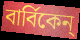
বার্বিকেন্